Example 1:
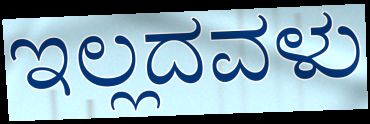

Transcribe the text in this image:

ಇಲ್ಲದವಳು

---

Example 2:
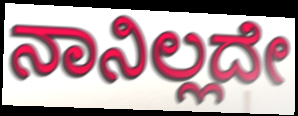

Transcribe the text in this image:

ನಾನಿಲ್ಲದೇ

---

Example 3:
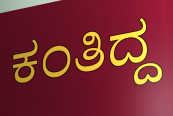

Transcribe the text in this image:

ಕಂತಿದ್ದ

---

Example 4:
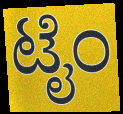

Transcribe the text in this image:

ಟೈಂ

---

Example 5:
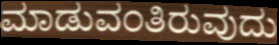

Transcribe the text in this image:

ಮಾಡುವಂತಿರುವುದು